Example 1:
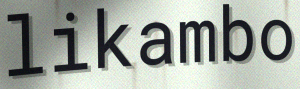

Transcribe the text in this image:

likambo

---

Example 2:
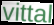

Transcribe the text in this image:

vittal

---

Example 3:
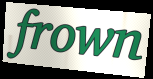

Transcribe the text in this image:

frown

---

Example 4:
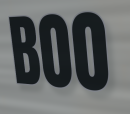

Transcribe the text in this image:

BOO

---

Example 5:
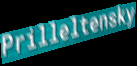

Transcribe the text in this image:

Prilleltensky